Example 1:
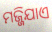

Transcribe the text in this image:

ମଜ୍ଜିଯାଏ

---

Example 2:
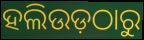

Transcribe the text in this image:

ହଲିଉଡ଼ଠାରୁ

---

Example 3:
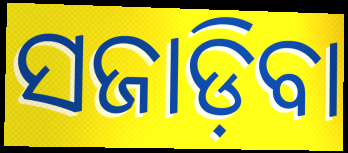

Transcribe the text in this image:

ସଜାଡ଼ିବା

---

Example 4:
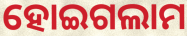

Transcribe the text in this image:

ହୋଇଗଲାମ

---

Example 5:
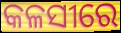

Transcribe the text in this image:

କଳସୀରେ